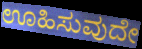
ಊಹಿಸುವುದೇ